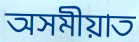
অসমীয়াত